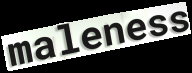
maleness